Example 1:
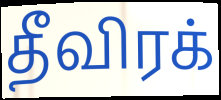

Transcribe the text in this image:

தீவிரக்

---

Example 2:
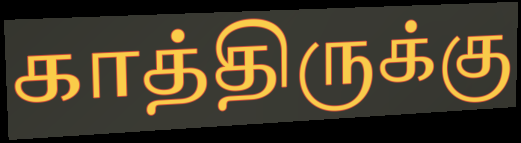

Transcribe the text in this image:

காத்திருக்கு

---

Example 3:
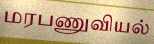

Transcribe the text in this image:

மரபணுவியல்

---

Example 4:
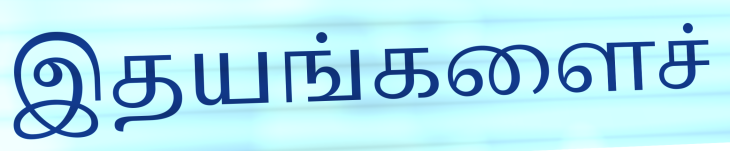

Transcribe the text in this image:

இதயங்களைச்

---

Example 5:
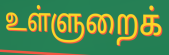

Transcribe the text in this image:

உள்ளுறைக்